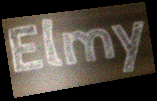
Elmy